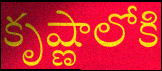
కృష్ణాలోకి